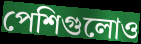
পেশিগুলোও